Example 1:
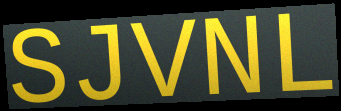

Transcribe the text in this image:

SJVNL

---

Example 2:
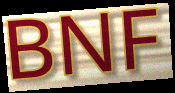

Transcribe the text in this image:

BNF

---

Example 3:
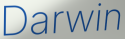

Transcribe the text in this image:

Darwin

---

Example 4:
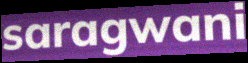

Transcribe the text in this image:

saragwani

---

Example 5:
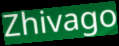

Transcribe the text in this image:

Zhivago